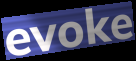
evoke